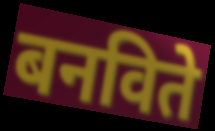
बनविते